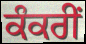
ਕੰਕਰੀਂ